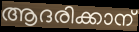
ആദരിക്കാന്